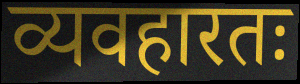
व्यवहारतः